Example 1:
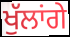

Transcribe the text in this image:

ਖੁੱਲਾਂਗੇ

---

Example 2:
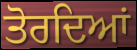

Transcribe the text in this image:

ਤੋਰਦਿਆਂ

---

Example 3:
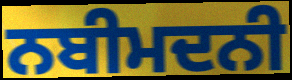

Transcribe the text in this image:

ਨਬੀਮਦਨੀ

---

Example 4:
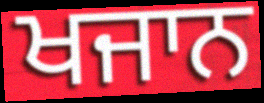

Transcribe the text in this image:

ਖਜਾਨ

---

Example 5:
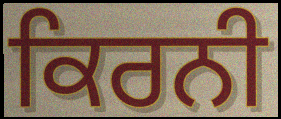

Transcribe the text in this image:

ਕਿਰਨੀ